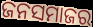
ଜନସମାଜର